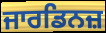
ਜਾਰਡਿਨਜ਼